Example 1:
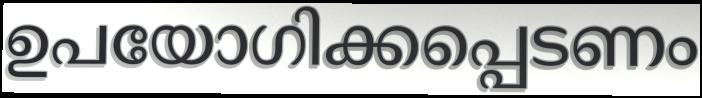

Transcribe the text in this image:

ഉപയോഗിക്കപ്പെടണം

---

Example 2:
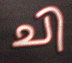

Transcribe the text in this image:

ചി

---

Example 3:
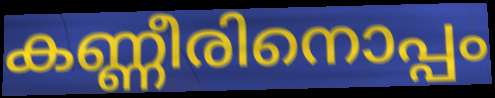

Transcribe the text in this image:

കണ്ണീരിനൊപ്പം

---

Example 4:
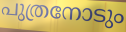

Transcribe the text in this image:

പുത്രനോടും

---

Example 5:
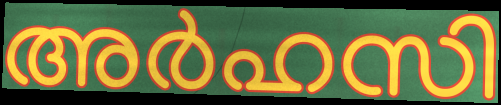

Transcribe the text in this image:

അർഹസി